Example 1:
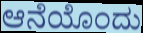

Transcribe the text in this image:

ಆನೆಯೊಂದು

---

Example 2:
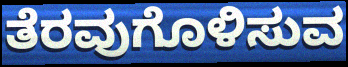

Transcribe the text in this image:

ತೆರವುಗೊಳಿಸುವ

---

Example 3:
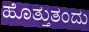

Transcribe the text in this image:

ಹೊತ್ತುತಂದು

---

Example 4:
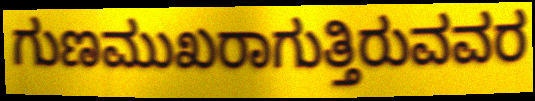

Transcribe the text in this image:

ಗುಣಮುಖರಾಗುತ್ತಿರುವವರ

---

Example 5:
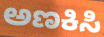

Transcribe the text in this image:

ಅಣಕಿಸಿ